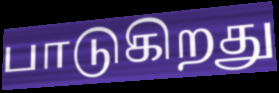
பாடுகிறது